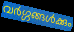
വർഗ്ഗങ്ങൾക്കും